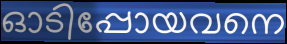
ഓടിപ്പോയവനെ